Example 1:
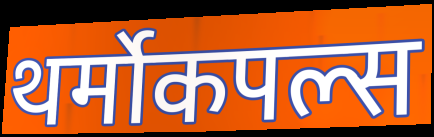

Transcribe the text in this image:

थर्मोकपल्स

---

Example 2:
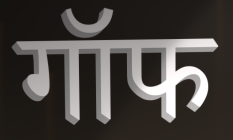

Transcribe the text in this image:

गॉफ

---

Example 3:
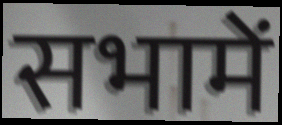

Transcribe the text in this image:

सभामें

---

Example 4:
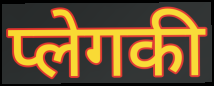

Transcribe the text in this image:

प्लेगकी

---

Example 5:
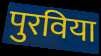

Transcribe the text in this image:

पुरविया